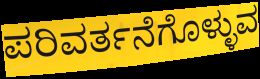
ಪರಿವರ್ತನೆಗೊಳ್ಳುವ